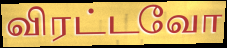
விரட்டவோ